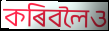
কৰিবলৈও